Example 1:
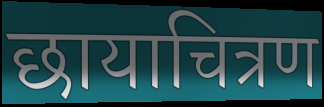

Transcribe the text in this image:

छायाचित्रण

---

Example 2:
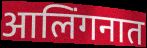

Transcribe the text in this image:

आलिंगनात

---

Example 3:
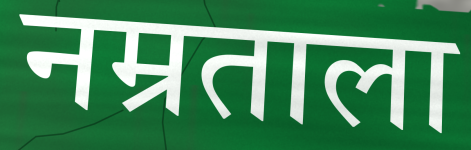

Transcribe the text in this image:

नम्रताला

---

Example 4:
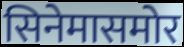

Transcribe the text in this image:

सिनेमासमोर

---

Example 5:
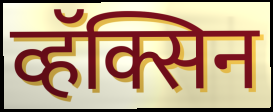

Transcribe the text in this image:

व्हॅक्सिन